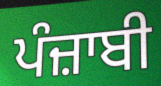
ਪੰਜ਼ਾਬੀ